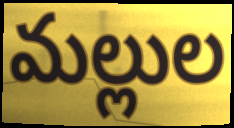
మల్లుల